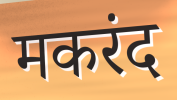
मकरंद